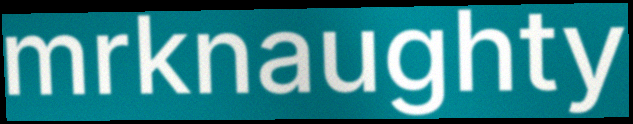
mrknaughty